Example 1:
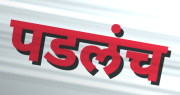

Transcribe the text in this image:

पडलंच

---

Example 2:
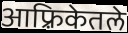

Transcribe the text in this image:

आफ़्रिकेतले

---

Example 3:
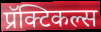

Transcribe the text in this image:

प्रॅक्टिकल्स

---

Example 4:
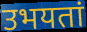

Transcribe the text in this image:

उभयतां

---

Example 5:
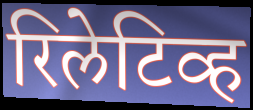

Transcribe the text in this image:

रिलेटिव्ह